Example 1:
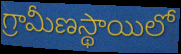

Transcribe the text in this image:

గ్రామీణస్థాయిలో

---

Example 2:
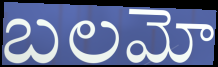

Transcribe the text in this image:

బలమో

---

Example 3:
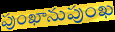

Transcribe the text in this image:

పుంఖానుపుంఖ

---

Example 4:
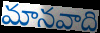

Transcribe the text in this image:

మానవాది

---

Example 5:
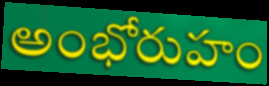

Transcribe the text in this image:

అంభోరుహం